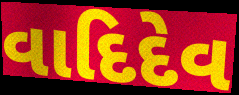
વાદિદેવ